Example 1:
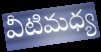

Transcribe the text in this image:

వీటిమధ్య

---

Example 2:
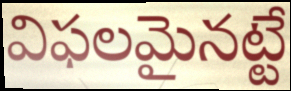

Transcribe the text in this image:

విఫలమైనట్టే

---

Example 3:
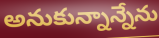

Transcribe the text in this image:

అనుకున్నాన్నేను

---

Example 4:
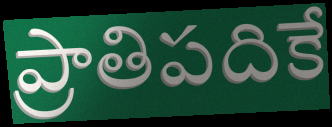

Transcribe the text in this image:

ప్రాతిపదికే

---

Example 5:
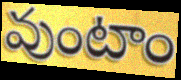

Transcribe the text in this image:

వుంటాం